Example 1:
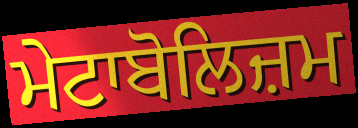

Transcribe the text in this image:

ਮੇਟਾਬੋਲਿਜ਼ਮ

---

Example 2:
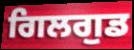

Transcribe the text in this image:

ਗਿਲਗੁਡ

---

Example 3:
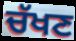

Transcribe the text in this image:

ਚੱਖਣ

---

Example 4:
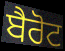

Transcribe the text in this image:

ਬੈਰੋਟ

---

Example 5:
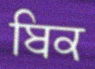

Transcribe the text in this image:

ਬਿਕ